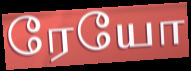
ரேயோ